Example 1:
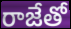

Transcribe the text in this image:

రాజేతో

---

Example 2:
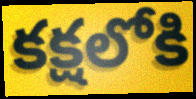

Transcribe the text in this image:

కక్షలోకి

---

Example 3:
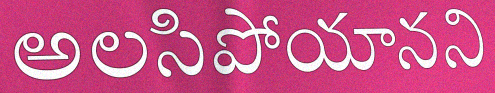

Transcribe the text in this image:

అలసిపోయానని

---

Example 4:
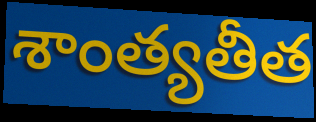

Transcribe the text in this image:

శాంత్యతీత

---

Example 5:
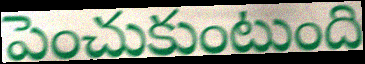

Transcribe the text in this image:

పెంచుకుంటుంది